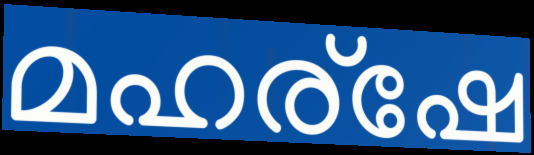
മഹര്ഷേ